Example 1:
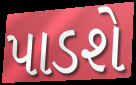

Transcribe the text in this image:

પાડશે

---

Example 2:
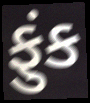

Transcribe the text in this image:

ફુંક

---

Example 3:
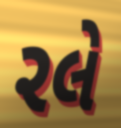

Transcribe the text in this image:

રલે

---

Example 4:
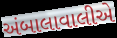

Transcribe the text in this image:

અંબાલાવાલીએ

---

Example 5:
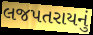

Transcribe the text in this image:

લજપતરાયનું